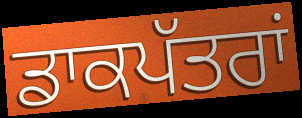
ਡਾਕਪੱਤਰਾਂ